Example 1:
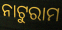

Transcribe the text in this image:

ନାଟୁରାମ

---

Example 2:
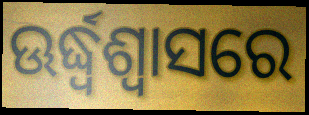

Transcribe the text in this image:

ଊର୍ଦ୍ଧ୍ୱଶ୍ୱାସରେ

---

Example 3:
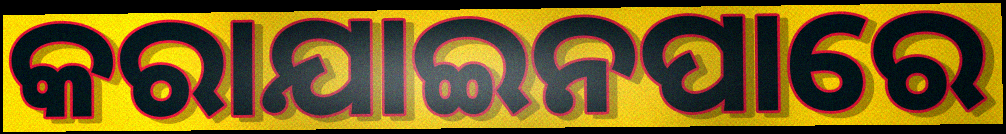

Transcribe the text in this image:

କରାଯାଇନପାରେ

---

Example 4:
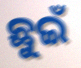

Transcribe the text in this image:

ଛୁଇଁ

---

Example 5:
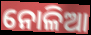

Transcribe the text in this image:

ନୋଳିଆ